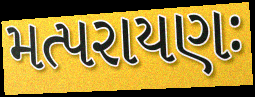
મત્પરાયણઃ